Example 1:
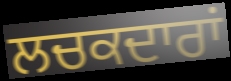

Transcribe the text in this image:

ਲਚਕਦਾਰਾਂ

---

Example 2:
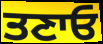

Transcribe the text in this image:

ਤਣਾਓ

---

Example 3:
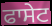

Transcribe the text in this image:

ਫਾਸੇਟ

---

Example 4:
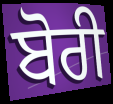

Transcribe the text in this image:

ਬੋਰੀ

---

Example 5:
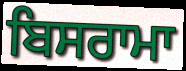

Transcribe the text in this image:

ਬਿਸਰਾਮਾ